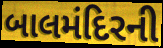
બાલમંદિરની